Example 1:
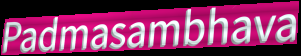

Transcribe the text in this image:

Padmasambhava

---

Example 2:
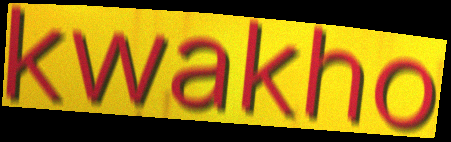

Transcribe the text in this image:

kwakho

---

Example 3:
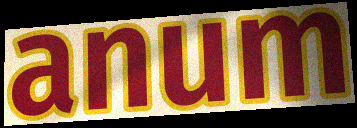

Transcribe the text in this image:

anum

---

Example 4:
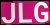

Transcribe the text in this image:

JLG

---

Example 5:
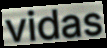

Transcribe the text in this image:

vidas